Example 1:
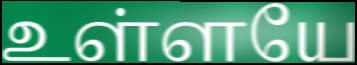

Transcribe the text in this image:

உள்ளயே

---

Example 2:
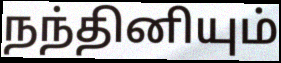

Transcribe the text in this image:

நந்தினியும்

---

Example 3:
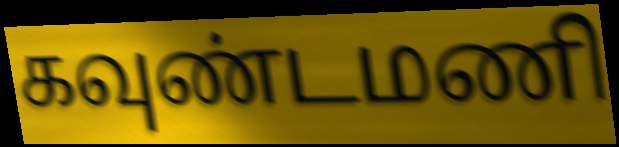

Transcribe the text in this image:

கவுண்டமணி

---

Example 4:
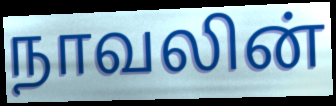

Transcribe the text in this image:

நாவலின்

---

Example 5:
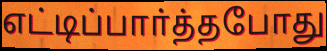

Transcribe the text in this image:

எட்டிப்பார்த்தபோது